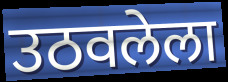
उठवलेला